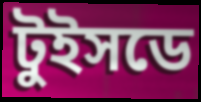
টুইসডে